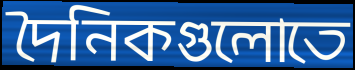
দৈনিকগুলোতে